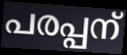
പരപ്പന്